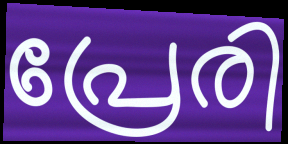
പ്രേരി